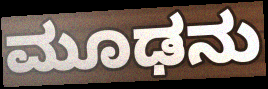
ಮೂಢನು